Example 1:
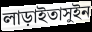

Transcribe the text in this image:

লাড়াইতাসুইন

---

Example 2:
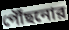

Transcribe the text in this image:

পৌঁছনোর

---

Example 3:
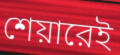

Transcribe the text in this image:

শেয়ারেই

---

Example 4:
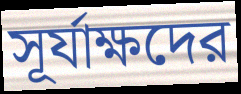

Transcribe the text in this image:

সূর্যাক্ষদের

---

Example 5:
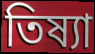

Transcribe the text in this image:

তিষ্যা